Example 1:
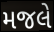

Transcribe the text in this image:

મજલે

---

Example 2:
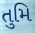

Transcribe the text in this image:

તુમિ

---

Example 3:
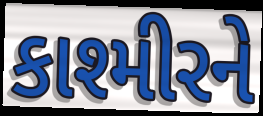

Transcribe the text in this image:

કાશ્મીરને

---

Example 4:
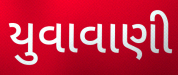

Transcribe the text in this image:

યુવાવાણી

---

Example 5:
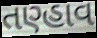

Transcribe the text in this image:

તણ્હાવ